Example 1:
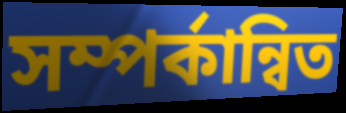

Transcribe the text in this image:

সম্পর্কান্বিত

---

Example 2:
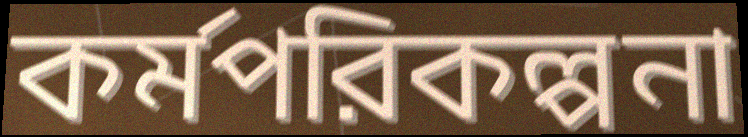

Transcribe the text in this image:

কর্মপরিকল্পনা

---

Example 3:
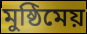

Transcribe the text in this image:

মুষ্ঠিমেয়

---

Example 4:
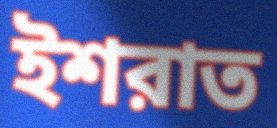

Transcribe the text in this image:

ইশরাত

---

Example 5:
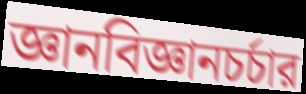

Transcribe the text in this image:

জ্ঞানবিজ্ঞানচর্চার